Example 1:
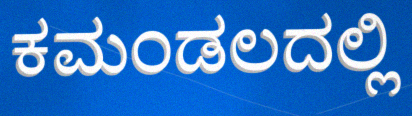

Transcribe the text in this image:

ಕಮಂಡಲದಲ್ಲಿ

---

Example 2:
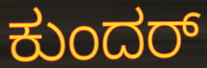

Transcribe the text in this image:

ಕುಂದರ್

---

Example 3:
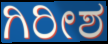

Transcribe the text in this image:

ಗಿರೀಶ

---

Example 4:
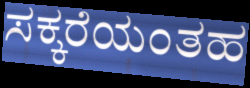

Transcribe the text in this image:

ಸಕ್ಕರೆಯಂತಹ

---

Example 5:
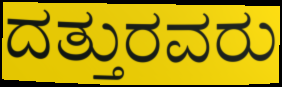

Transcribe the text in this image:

ದತ್ತುರವರು